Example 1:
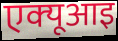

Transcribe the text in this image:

एक्यूआइ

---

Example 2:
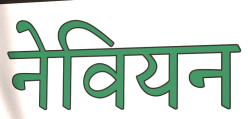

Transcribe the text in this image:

नेवियन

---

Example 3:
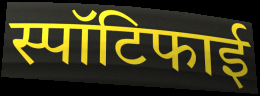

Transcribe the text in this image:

स्पॉटिफाई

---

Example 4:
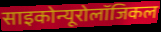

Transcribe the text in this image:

साइकोन्यूरोलॉजिकल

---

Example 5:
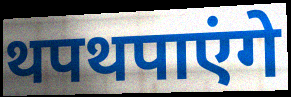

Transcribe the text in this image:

थपथपाएंगे